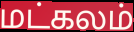
மட்கலம்